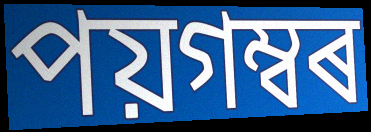
পয়গম্বৰ